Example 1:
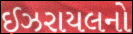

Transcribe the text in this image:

ઈઝરાયલનો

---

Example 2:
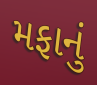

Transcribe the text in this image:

મફાનું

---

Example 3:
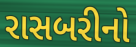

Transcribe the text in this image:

રાસબરીનો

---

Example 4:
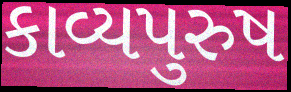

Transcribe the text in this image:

કાવ્યપુરુષ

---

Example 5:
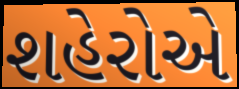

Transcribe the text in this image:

શહેરોએ